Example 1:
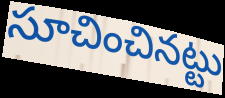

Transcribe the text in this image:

సూచించినట్టు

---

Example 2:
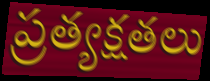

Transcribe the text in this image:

ప్రత్యక్షతలు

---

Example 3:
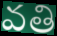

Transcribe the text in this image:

వతి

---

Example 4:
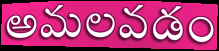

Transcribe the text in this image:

అమలవడం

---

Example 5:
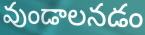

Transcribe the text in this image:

వుండాలనడం